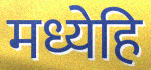
मध्येहि